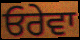
ਓਰੇਵਾ